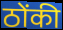
ठोंकी